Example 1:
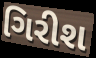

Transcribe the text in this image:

ગિરીશ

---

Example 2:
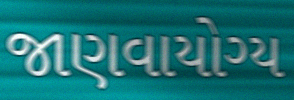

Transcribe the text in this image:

જાણવાયોગ્ય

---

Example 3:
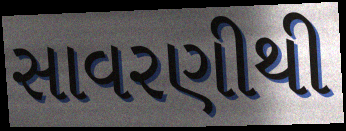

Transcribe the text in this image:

સાવરણીથી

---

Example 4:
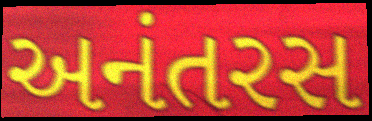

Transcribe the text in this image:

અનંતરસ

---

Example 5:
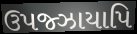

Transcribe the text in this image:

ઉપજ્ઝાયાપિ